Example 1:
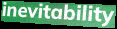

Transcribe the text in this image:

inevitability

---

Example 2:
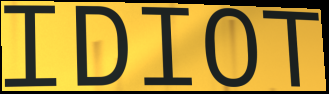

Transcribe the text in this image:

IDIOT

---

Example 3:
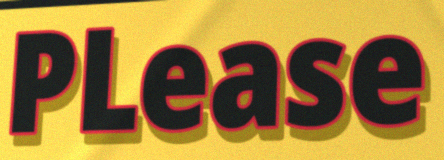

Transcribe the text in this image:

PLease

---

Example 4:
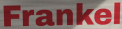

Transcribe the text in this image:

Frankel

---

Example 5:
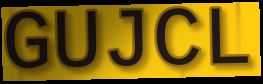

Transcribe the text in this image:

GUJCL